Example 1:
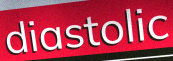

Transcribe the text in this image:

diastolic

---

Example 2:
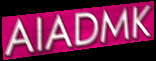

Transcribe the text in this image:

AIADMK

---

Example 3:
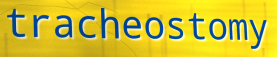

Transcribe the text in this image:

tracheostomy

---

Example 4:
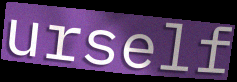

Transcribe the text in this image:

urself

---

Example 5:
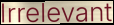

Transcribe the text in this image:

Irrelevant